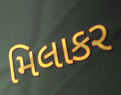
મિલાકર